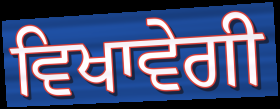
ਵਿਖਾਵੇਗੀ